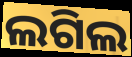
ଲଗିଲ